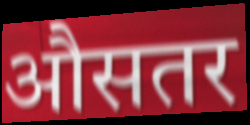
औसतर